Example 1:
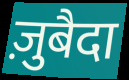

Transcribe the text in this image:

ज़ुबैदा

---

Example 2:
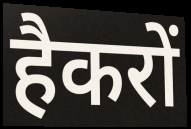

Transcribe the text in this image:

हैकरों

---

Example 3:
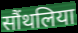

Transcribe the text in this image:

सौंथलिया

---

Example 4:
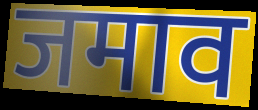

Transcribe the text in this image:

जमाव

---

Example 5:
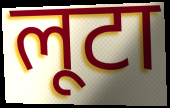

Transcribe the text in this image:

लूटा